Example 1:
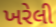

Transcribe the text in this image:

ખરેલી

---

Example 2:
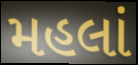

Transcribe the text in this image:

મહલાં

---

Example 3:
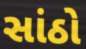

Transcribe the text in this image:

સાંઠો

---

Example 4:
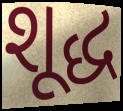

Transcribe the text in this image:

શૂદ્ધ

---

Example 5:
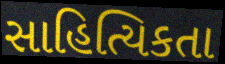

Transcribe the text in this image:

સાહિત્યિકતા